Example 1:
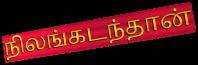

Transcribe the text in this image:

நிலங்கடந்தான்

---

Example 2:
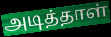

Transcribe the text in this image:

அடித்தாள்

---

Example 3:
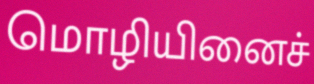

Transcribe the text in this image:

மொழியினைச்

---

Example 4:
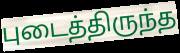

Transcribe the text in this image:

புடைத்திருந்த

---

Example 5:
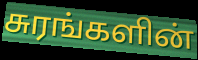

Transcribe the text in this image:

சுரங்களின்